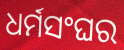
ଧର୍ମସଂଘର